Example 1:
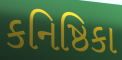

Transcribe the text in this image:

કનિષ્ઠિકા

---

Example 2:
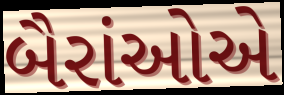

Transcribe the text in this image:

બૈરાંઓએ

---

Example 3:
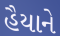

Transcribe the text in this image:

હૈયાને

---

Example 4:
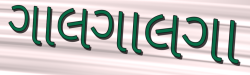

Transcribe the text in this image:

ગાલગાલગા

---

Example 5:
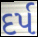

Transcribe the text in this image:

દર્પ